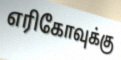
எரிகோவுக்கு